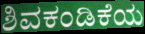
ಶಿವಕಂಡಿಕೆಯ